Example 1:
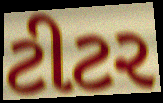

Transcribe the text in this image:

ટીટર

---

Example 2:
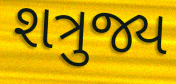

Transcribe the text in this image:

શત્રુજ્ય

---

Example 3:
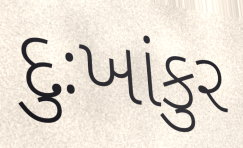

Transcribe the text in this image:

દુઃખાંકુર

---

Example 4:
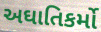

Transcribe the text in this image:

અઘાતિકર્મો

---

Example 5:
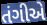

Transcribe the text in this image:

તંગીએ